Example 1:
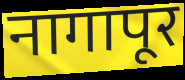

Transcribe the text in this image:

नागापूर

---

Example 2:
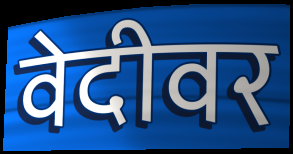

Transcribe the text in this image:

वेदीवर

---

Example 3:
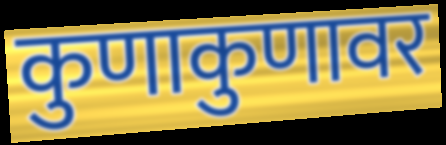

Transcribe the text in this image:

कुणाकुणावर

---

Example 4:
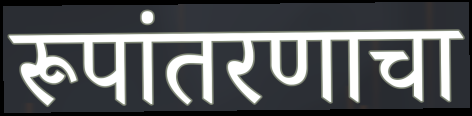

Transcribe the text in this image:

रूपांतरणाचा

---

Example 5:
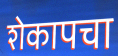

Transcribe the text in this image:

शेकापचा